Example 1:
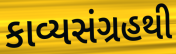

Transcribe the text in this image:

કાવ્યસંગ્રહથી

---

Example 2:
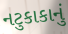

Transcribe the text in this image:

નટુકાકાનું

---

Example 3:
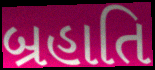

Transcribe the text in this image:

બ્રહાતિ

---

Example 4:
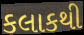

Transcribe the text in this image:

કલાકથી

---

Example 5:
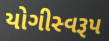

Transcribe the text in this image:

યોગીસ્વરૂપ